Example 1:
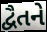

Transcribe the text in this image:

દ્વૈતને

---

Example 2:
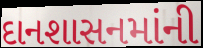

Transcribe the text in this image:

દાનશાસનમાંની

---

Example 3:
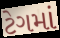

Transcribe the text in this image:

ટેગમાં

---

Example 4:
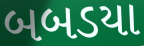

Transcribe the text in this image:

બબડયા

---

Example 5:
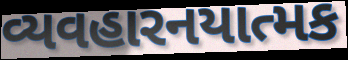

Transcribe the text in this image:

વ્યવહારનયાત્મક